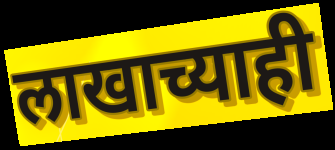
लाखाच्याही